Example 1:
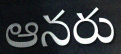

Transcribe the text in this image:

ఆనరు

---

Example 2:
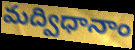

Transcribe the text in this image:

మద్విధానాం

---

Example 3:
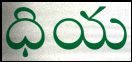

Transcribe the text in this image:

ధియ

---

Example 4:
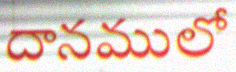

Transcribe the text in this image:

దానములో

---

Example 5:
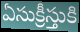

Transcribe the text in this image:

ఏసుక్రీస్తుకి